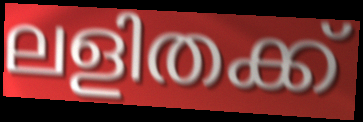
ലളിതക്ക്